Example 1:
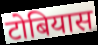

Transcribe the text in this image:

टोबियास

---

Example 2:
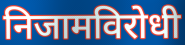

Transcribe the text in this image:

निजामविरोधी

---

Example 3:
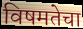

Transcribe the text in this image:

विषमतेचा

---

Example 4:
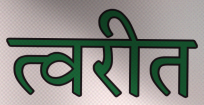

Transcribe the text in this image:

त्वरीत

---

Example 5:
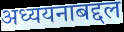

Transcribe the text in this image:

अध्ययनाबद्दल